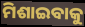
ମିଶାଇବାକୁ